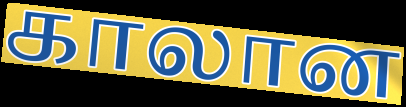
காலான